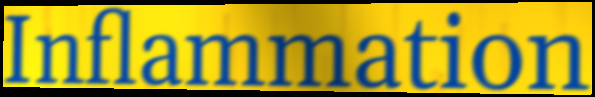
Inflammation